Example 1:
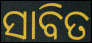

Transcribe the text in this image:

ସାବିତ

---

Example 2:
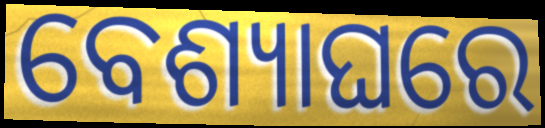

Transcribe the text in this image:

ବେଶ୍ୟାଘରେ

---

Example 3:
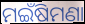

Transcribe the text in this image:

ମଇଁଷିମଣା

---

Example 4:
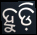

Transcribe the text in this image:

ହୁଡ଼ି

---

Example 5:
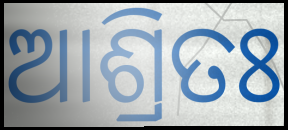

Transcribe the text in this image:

ଆଶ୍ରିତଃ